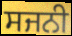
ਸਜਨੀ